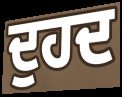
ਦੁਹਦ